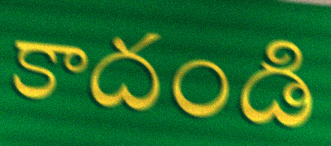
కాదండి